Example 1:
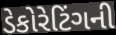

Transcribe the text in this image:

ડેકોરેટિંગની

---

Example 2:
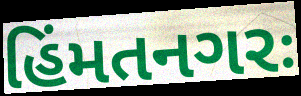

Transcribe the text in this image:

હિંમતનગરઃ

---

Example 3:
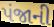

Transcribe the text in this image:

પંજાની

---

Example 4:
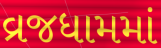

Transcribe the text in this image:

વ્રજધામમાં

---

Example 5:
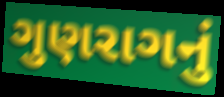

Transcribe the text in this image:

ગુણરાગનું